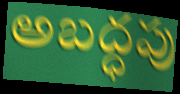
అబద్ధపు